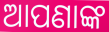
ଆପଣାଙ୍କ